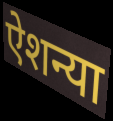
ऐशन्या